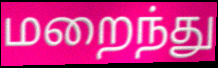
மறைந்து